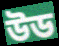
উড